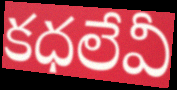
కధలేవీ